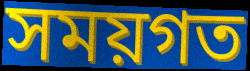
সময়গত